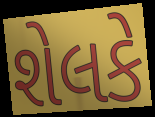
શેલકે